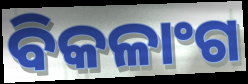
ବିକଳାଂଗ